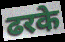
ढरके